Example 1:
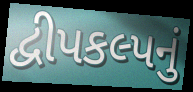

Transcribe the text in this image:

દ્વીપકલ્પનું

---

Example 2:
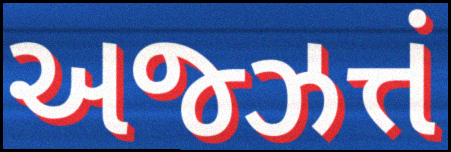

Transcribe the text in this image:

અજ્ઝત્તં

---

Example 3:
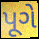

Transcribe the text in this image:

પૂગે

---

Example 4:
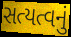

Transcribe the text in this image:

સત્યત્વનું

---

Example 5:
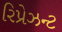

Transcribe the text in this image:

રિપ્રેઝન્ટ